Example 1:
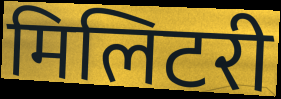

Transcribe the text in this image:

मिलिटरी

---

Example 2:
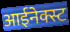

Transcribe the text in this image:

आईनेक्स्ट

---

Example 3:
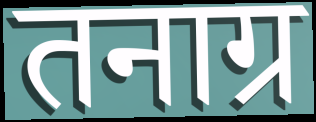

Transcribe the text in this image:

तनाग्र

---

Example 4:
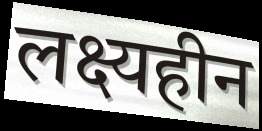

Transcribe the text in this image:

लक्ष्यहीन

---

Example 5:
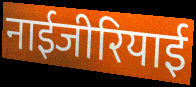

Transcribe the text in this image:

नाईजीरियाई